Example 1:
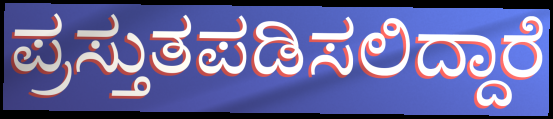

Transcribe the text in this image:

ಪ್ರಸ್ತುತಪಡಿಸಲಿದ್ದಾರೆ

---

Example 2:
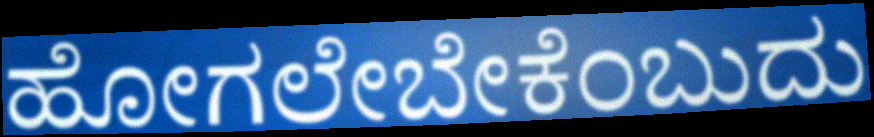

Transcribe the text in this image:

ಹೋಗಲೇಬೇಕೆಂಬುದು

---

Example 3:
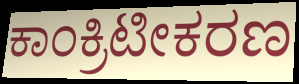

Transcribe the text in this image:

ಕಾಂಕ್ರಿಟೀಕರಣ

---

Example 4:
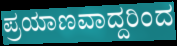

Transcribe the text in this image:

ಪ್ರಯಾಣವಾದ್ದರಿಂದ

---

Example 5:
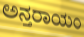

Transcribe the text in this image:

ಅನ್ತರಾಯಂ